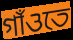
গাঁওতে